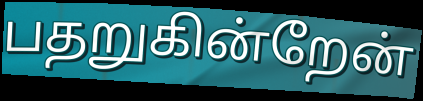
பதறுகின்றேன்